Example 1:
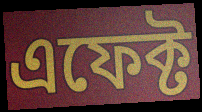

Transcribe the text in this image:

এফেক্ট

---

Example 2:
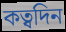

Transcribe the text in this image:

কত্বদিন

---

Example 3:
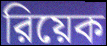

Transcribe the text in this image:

রিয়েক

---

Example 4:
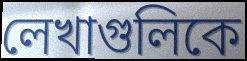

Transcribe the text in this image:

লেখাগুলিকে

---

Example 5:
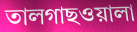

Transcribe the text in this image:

তালগাছওয়ালা